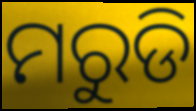
ମରୁଡି